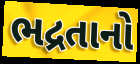
ભદ્રતાનો